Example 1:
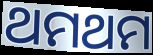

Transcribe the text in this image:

ଥମଥମ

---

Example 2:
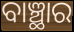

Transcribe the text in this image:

ବାଞ୍ଛାର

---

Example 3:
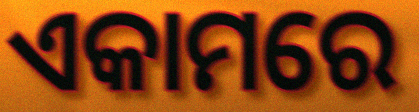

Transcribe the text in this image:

ଏକାମରେ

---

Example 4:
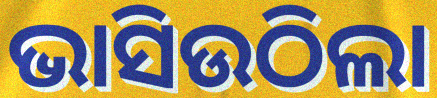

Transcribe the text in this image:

ଭାସିଉଠିଲା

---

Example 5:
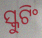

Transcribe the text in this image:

ସ୍କୁଟିଂ